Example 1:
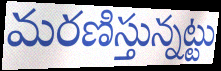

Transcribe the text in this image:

మరణిస్తున్నట్టు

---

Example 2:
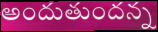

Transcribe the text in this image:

అందుతుందన్న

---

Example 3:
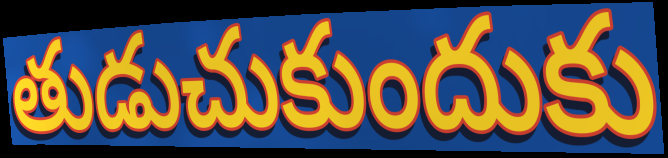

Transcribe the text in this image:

తుడుచుకుందుకు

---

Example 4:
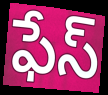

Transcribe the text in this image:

ఫేస్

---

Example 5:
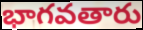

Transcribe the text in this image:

భాగవతారు